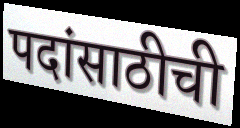
पदांसाठीची